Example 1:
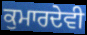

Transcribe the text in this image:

ਕੁਮਾਰਦੇਵੀ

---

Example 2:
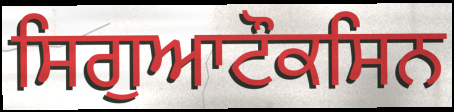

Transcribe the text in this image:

ਸਿਗੁਆਟੌਕਸਿਨ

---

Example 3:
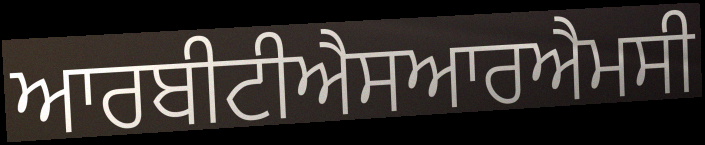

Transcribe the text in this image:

ਆਰਬੀਟੀਐਸਆਰਐਮਸੀ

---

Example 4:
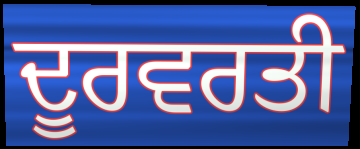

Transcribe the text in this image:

ਦੂਰਵਰਤੀ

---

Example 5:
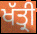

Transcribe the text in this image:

ਖੱਤ੍ਰੀ